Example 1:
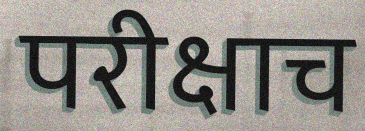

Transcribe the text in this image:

परीक्षाच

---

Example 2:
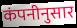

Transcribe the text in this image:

कंपनीनुसार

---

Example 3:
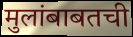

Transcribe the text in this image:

मुलांबाबतची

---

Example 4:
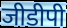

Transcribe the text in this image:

जीडीपी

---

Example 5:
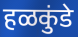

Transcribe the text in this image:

हळकुंडे